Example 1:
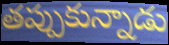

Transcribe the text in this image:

తప్పుకున్నాడు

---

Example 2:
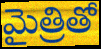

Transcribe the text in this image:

మైత్రితో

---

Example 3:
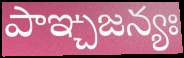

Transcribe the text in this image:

పాఞ్చజన్యః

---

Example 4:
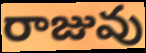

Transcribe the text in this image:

రాజువు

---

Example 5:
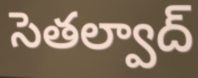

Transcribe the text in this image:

సెతల్వాద్